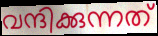
വന്ദിക്കുന്നത്